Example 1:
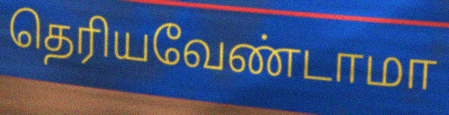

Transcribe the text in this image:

தெரியவேண்டாமா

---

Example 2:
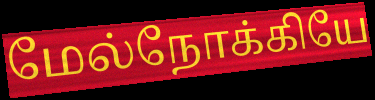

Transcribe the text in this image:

மேல்நோக்கியே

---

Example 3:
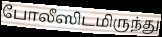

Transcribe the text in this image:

போலீஸிடமிருந்து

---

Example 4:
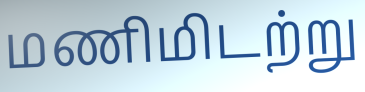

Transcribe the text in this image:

மணிமிடற்று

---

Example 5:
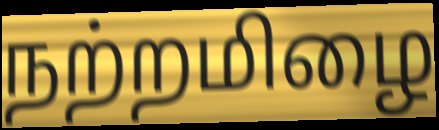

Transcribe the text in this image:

நற்றமிழை